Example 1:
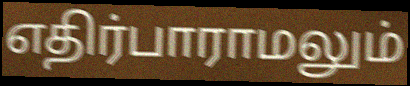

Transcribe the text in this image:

எதிர்பாராமலும்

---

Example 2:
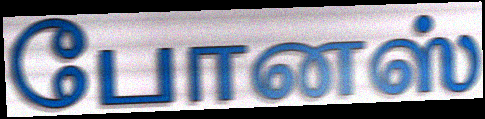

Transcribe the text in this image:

போனஸ்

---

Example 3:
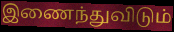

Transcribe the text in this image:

இணைந்துவிடும்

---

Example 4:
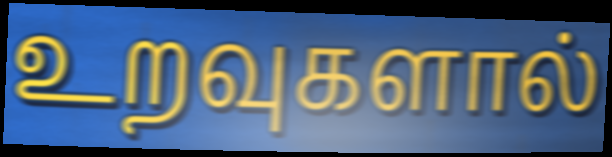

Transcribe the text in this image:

உறவுகளால்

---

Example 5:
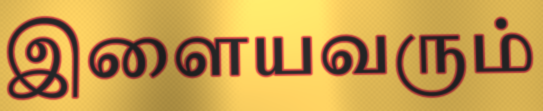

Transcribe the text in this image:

இளையவரும்